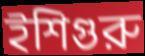
ইশিগুরু